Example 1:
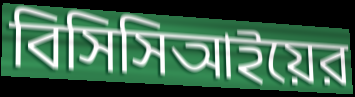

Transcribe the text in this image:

বিসিসিআইয়ের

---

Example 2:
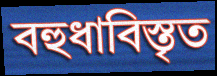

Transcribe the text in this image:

বহুধাবিস্তৃত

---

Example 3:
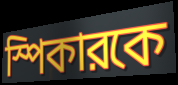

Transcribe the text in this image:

স্পিকারকে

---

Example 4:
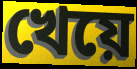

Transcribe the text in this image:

খেয়ে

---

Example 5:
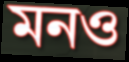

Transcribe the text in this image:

মনও